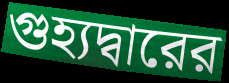
গুহ্যদ্বারের